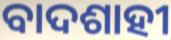
ବାଦଶାହୀ